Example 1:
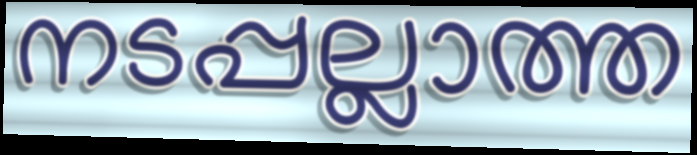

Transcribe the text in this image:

നടപ്പല്ലാത്ത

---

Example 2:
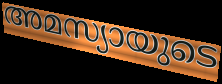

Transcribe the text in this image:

അമസ്യായുടെ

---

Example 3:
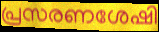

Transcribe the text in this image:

പ്രസരണശേഷി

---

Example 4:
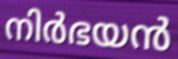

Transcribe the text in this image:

നിർഭയൻ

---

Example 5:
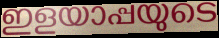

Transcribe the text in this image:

ഇളയാപ്പയുടെ